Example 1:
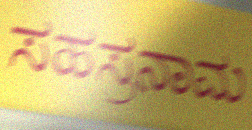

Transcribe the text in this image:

ಸಹಸ್ರನಾಮ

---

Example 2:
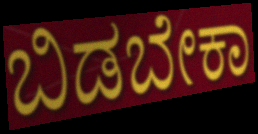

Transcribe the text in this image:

ಬಿಡಬೇಕಾ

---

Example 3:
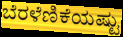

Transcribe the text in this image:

ಬೆರಳೆಣಿಕೆಯಷ್ಟು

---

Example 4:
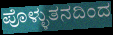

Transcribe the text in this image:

ಪೊಳ್ಳುತನದಿಂದ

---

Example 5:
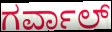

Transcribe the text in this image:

ಗರ್ವಾಲ್